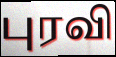
புரவி